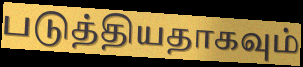
படுத்தியதாகவும்